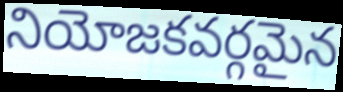
నియోజకవర్గమైన